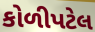
કોળીપટેલ